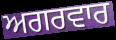
ਅਗਰਵਾਰ